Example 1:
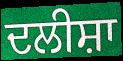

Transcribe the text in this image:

ਦਲੀਸ਼ਾ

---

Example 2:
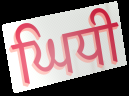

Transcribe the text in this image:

ਘਿਧੀ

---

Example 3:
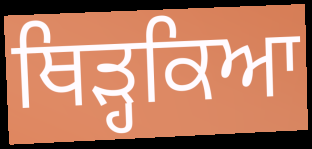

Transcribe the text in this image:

ਥਿੜ੍ਹਕਿਆ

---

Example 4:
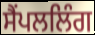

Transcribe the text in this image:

ਸੈਂਪਲਲਿੰਗ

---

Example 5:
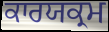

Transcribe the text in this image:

ਕਾਰਯਕ੍ਰਮ